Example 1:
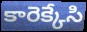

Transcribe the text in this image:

కారెక్కేసి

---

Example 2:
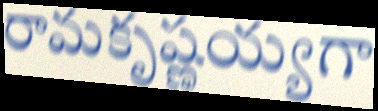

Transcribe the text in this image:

రామకృష్ణయ్యగా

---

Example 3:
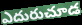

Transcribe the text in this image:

ఎదురుచూడ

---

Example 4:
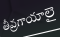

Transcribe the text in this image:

తీవ్రగాయాలై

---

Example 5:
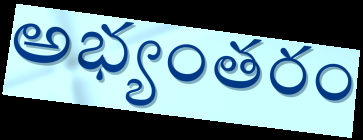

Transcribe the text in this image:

అభ్యంతరం